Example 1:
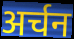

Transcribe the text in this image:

अर्चन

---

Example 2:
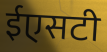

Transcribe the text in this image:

ईएसटी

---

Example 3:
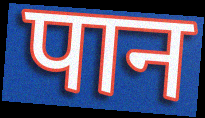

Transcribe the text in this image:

पान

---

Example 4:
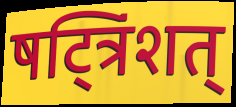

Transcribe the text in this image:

षट्त्रिंशत्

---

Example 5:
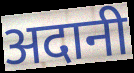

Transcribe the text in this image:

अदानी